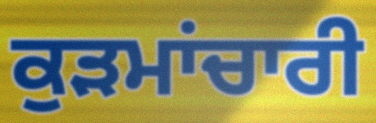
ਕੁੜਮਾਂਚਾਰੀ